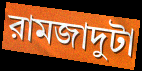
রামজাদুটা